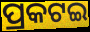
ପ୍ରକଟଇ